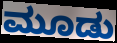
ಮೂಡು